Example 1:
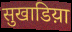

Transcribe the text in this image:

सुखाडिय़ा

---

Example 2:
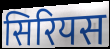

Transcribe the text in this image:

सिरियस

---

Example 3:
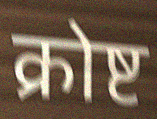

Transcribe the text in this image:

क्रोष्ट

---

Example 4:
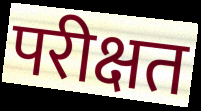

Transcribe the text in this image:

परीक्षत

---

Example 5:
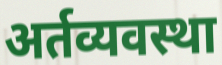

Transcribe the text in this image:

अर्तव्यवस्था